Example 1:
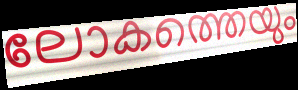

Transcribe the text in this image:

ലോകത്തെയും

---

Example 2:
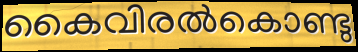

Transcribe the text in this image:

കൈവിരൽകൊണ്ടു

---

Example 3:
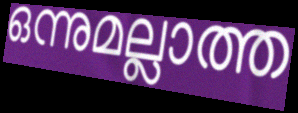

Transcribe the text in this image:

ഒന്നുമല്ലാത്ത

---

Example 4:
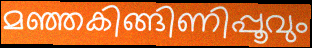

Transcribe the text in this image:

മഞ്ഞകിങ്ങിണിപ്പൂവും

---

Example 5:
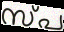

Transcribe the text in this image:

സ്പ